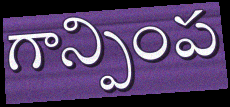
గాన్పింప